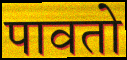
पावतो